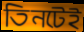
তিনটেই